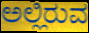
ಅಲ್ಲಿರುವ